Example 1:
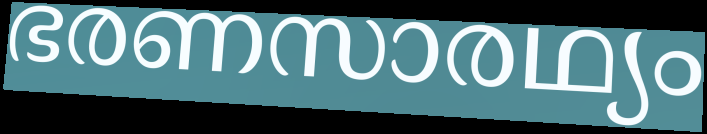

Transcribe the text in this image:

ഭരണസാരഥ്യം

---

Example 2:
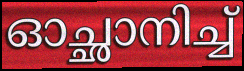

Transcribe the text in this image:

ഓച്ഛാനിച്ച്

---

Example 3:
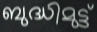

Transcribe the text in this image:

ബുദ്ധിമുട്ട്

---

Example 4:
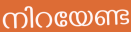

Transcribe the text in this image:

നിറയേണ്ട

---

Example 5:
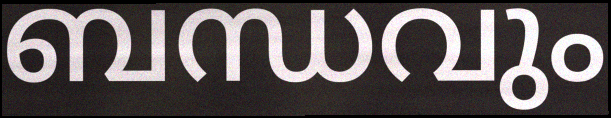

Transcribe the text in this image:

ബന്ധവും